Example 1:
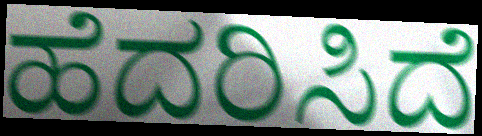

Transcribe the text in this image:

ಹೆದರಿಸಿದೆ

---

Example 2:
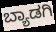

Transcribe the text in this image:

ಬ್ಯಾಡಗಿ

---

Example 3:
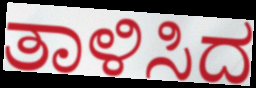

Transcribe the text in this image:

ತಾಳಿಸಿದ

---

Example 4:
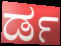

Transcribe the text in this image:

ರ್ಡ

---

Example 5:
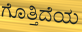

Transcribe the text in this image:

ಗೊತ್ತಿದೆಯ